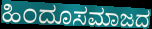
ಹಿಂದೂಸಮಾಜದ